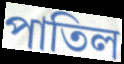
পাতিল